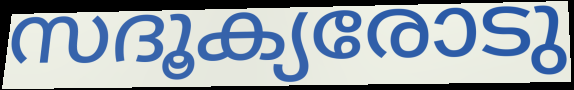
സദൂക്യരോടു